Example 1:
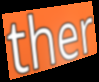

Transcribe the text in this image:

ther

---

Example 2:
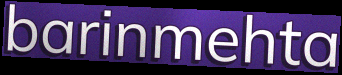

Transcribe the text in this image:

barinmehta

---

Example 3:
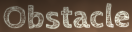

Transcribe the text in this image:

Obstacle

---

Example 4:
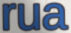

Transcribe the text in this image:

rua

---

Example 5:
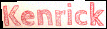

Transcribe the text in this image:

Kenrick